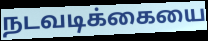
நடவடிக்கையை